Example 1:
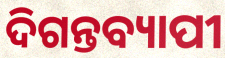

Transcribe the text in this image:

ଦିଗନ୍ତବ୍ୟାପୀ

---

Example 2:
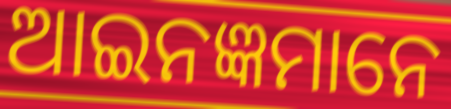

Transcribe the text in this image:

ଆଇନଜ୍ଞମାନେ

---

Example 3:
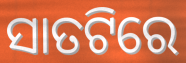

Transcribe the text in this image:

ସାତଟିରେ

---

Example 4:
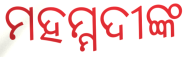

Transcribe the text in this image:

ମହମ୍ମଦୀଙ୍କ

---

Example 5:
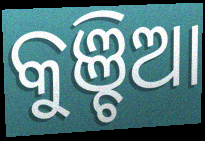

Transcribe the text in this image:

କୁଞ୍ଚିଆ